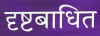
दृष्टबाधित